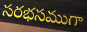
సరభసముగా